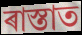
ৰাস্তাত